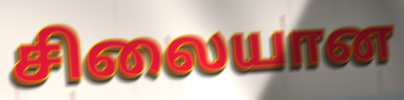
சிலையான